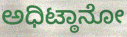
ಅಧಿಟ್ಠಾನೋ